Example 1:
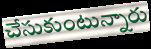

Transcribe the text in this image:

చేసుకుంటున్నారు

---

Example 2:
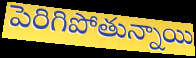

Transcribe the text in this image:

పెరిగిపోతున్నాయి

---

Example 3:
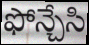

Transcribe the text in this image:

ఫోన్చేసి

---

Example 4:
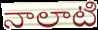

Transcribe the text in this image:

నాలాటి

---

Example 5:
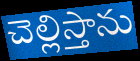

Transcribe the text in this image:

చెల్లిస్తాను